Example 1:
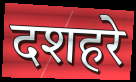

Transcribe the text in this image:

दशहरे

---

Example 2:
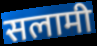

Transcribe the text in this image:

सलामी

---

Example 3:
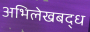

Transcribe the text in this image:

अभिलेखबद्ध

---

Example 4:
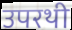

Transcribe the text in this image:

उपरथी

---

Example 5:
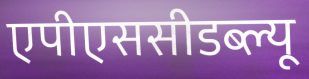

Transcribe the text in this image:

एपीएससीडब्ल्यू